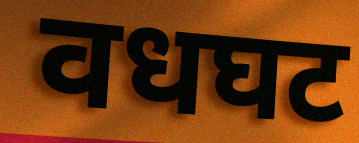
वधघट